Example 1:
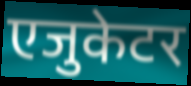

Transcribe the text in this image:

एजुकेटर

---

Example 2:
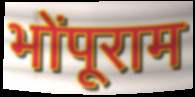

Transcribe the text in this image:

भोंपूराम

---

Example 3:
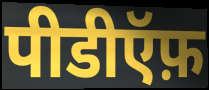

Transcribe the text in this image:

पीडीऍफ़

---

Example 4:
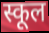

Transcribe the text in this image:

स्कूल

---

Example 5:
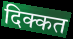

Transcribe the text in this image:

दिक्कत